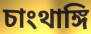
চাংথাঙ্গি